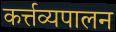
कर्त्तव्यपालन